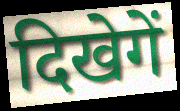
दिखेगें